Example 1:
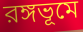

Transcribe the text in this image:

রঙ্গভূমে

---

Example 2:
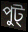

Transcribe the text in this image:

পুট্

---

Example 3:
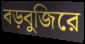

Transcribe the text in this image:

বড়বুজিরে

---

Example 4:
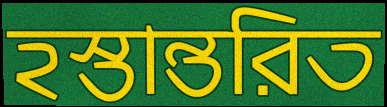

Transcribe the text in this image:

হস্তান্তরিত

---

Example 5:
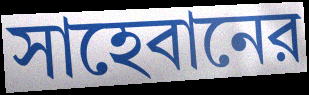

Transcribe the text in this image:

সাহেবানের